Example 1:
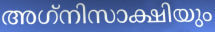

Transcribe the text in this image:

അഗ്‌നിസാക്ഷിയും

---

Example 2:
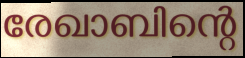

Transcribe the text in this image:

രേഖാബിന്റെ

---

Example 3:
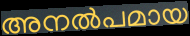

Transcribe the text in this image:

അനൽപമായ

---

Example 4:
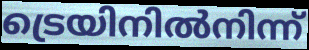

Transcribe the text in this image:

ട്രെയിനിൽനിന്ന്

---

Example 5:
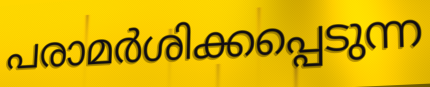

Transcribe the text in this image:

പരാമർശിക്കപ്പെടുന്ന